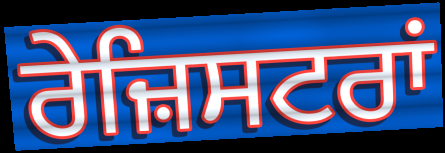
ਰੇਜ਼ਿਸਟਰਾਂ